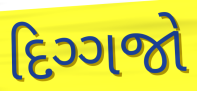
દિગ્ગજો